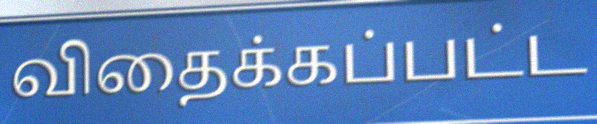
விதைக்கப்பட்ட